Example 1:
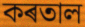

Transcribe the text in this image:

কৰতাল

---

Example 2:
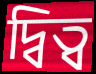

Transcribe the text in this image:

দ্বিত্ব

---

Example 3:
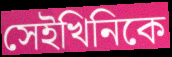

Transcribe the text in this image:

সেইখিনিকে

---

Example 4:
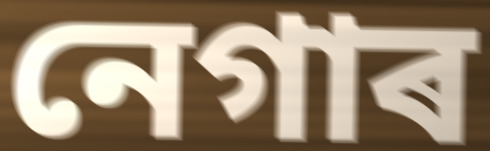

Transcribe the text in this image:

নেগাৰ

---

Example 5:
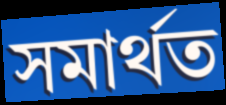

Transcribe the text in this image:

সমাৰ্থত